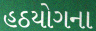
હઠયોગના